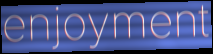
enjoyment